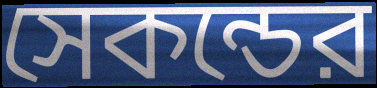
সেকন্ডের